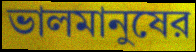
ভালমানুষের